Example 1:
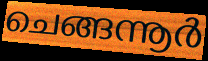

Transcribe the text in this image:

ചെങ്ങന്നൂർ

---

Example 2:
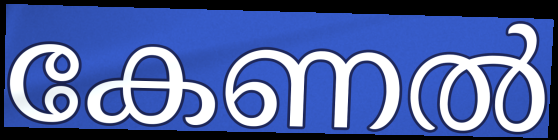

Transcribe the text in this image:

കേണൽ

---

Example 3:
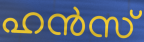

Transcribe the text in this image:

ഹൻസ്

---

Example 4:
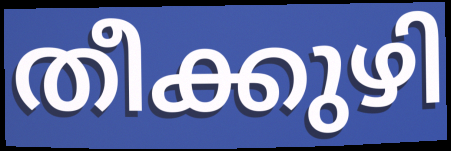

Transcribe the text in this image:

തീക്കുഴി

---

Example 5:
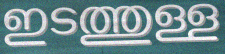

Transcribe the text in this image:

ഇടത്തുള്ള